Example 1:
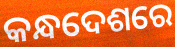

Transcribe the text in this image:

କନ୍ଧଦେଶରେ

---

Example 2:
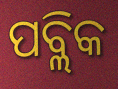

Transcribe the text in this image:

ପବ୍ଲିକ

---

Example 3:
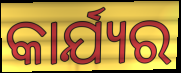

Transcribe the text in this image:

କାର୍ଯ୍ୟର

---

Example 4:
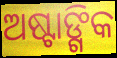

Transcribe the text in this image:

ଅଷ୍ଟାଙ୍ଗିକ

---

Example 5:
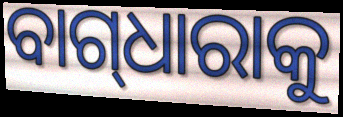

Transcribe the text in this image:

ବାଗ୍‌ଧାରାକୁ